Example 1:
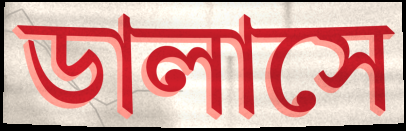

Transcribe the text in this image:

ডালাসে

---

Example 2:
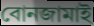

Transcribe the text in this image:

বোনজামাই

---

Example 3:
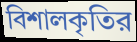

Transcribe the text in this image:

বিশালকৃতির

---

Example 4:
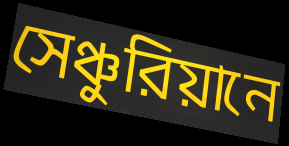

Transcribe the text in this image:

সেঞ্চুরিয়ানে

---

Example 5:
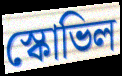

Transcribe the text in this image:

স্কোভিল